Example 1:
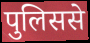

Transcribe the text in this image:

पुलिससे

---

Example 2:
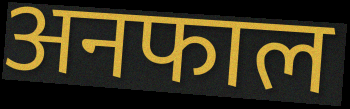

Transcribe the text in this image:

अनफाल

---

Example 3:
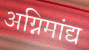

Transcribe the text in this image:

अग्निमांद्य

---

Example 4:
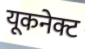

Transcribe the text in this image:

यूकनेक्ट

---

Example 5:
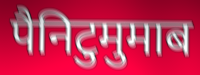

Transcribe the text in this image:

पैनिटुमुमाब